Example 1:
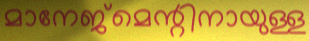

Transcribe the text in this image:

മാനേജ്മെന്റിനായുള്ള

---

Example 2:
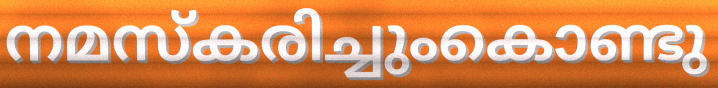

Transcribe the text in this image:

നമസ്കരിച്ചുംകൊണ്ടു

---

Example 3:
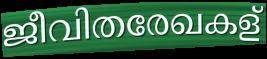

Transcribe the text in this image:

ജീവിതരേഖകള്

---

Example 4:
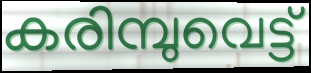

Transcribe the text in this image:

കരിമ്പുവെട്ട്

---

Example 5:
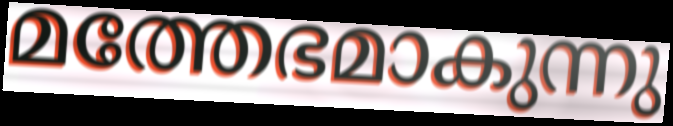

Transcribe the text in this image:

മത്തേഭമാകുന്നു